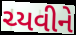
ચ્યવીને